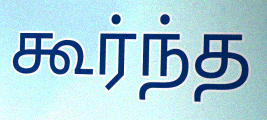
கூர்ந்த